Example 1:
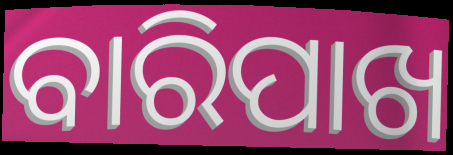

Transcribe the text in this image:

ବାରିପାଖ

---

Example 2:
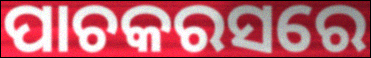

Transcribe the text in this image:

ପାଚକରସରେ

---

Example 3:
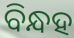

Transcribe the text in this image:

ବିନ୍ଧହ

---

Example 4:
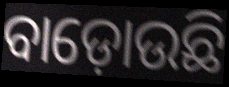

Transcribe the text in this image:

ବାଡ଼ୋଉଛି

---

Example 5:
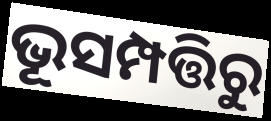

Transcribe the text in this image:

ଭୂସମ୍ପତ୍ତିରୁ